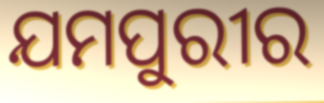
ଯମପୁରୀର